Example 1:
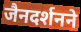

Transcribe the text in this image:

जैनदर्शनने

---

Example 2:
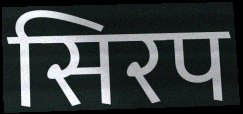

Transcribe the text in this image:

सिरप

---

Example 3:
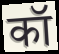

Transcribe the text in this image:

कॉ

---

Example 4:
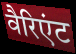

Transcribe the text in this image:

वैरिएंट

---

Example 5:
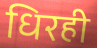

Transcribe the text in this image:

धिरही